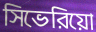
সিভেরিয়ো